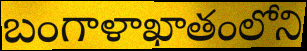
బంగాళాఖాతంలోని